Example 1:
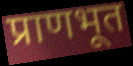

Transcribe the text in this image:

प्राणभूत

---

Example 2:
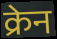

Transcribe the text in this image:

क्रेन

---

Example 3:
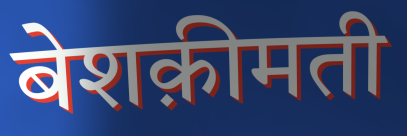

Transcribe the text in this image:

बेशक़ीमती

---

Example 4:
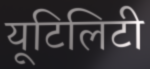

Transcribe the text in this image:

यूटिलिटी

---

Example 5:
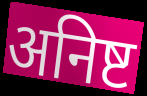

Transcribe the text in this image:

अनिष्ट